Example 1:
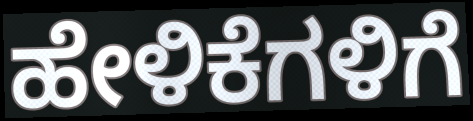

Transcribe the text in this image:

ಹೇಳಿಕೆಗಳಿಗೆ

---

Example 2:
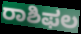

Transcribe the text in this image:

ರಾಶಿಫಲ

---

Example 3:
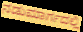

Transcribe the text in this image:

ನಡುಮಾರ್ಗದಲ್ಲಿ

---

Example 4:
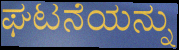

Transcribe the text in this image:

ಘಟನೆಯನ್ನು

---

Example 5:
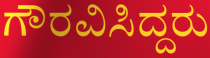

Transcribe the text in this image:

ಗೌರವಿಸಿದ್ದರು